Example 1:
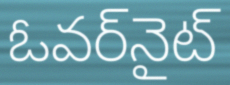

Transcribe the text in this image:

ఓవర్‌నైట్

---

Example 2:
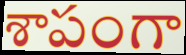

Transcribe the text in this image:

శాపంగా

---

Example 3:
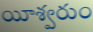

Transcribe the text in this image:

యీశ్వరుం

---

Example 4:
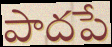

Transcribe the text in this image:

పాదపే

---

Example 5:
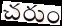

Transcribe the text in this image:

చరుం